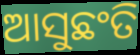
ଆସୁଛଂତି